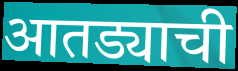
आतड्याची